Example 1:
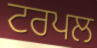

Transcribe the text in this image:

ਟਰਪਲ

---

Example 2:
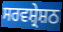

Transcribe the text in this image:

ਸਰਵਸ਼੍ਰੇਸ਼ਠ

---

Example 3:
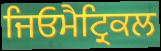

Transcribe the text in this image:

ਜਿਓਮੈਟ੍ਰਿਕਲ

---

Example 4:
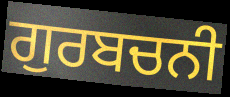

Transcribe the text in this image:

ਗੁਰਬਚਨੀ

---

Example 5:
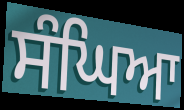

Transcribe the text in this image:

ਸੰਘਿਆ